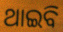
ଥାଇବି